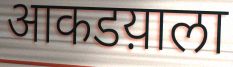
आकडय़ाला